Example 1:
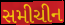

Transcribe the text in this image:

સમીચીન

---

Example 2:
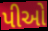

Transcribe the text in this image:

પીઓ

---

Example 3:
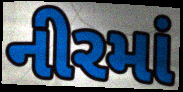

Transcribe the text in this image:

નીરમાં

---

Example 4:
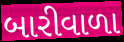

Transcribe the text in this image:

બારીવાળા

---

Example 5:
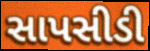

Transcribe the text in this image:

સાપસીડી